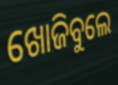
ଖୋଜିବୁଲେ